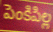
పెంకిపిల్ల